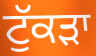
ਟੁੱਕੜਾ